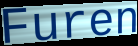
Furen